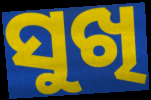
ସୁଖି